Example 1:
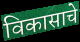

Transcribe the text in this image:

विकासाचे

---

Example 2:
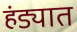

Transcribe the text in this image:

हंड्यात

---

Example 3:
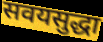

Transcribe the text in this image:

सवयसुद्धा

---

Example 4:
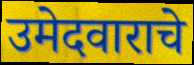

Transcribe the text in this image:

उमेदवाराचे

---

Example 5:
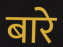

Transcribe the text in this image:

बारे